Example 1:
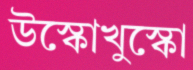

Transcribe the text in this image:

উস্কোখুস্কো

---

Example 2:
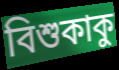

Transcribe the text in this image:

বিশুকাকু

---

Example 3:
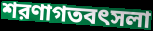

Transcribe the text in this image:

শরণাগতবৎসলা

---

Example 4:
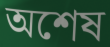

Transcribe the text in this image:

অশেষ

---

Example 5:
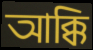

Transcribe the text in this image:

আক্কি